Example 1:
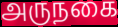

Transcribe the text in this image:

அருநகை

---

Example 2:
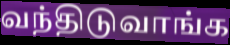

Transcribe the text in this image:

வந்திடுவாங்க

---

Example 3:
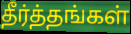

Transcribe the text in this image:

தீர்த்தங்கள்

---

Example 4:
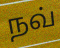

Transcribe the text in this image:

நவ்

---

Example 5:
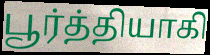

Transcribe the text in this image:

பூர்த்தியாகி